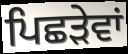
ਪਿਛੜੇਵਾਂ